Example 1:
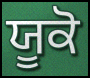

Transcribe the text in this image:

ਯੂਕੋ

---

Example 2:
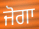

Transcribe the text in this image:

ਜੋਗਾ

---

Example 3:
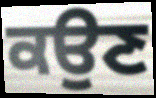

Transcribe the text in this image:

ਕਉਣ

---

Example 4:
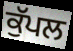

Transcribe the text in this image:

ਕੁੱਪਲ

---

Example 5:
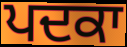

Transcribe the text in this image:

ਪਦਕਾ